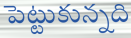
పెట్టుకున్నది